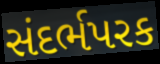
સંદર્ભપરક